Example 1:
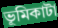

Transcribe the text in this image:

ভূমিকাটা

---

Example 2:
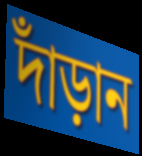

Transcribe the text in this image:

দাঁড়ান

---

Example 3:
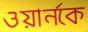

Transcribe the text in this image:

ওয়ার্নকে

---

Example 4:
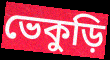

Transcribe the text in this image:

ভেকুড়ি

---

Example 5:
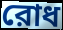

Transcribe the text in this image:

রোধ